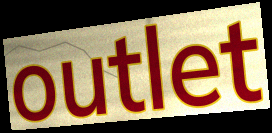
outlet